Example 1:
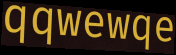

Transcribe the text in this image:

qqwewqe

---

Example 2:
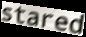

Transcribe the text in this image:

stared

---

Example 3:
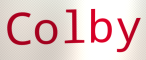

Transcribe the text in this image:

Colby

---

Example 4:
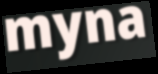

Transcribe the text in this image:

myna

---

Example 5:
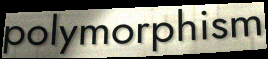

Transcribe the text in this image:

polymorphism